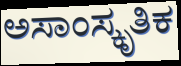
ಅಸಾಂಸ್ಕೃತಿಕ